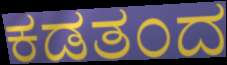
ಕಡತಂದ